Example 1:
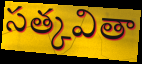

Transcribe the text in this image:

సత్కవితా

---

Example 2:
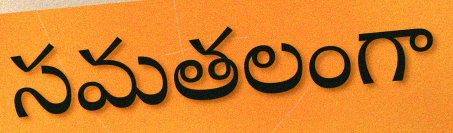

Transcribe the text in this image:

సమతలంగా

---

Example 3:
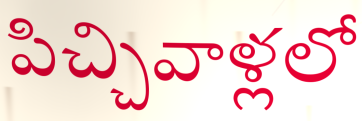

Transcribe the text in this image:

పిచ్చివాళ్లలో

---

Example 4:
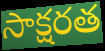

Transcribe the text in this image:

సాక్షరత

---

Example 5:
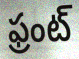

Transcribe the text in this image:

ఫ్రంట్